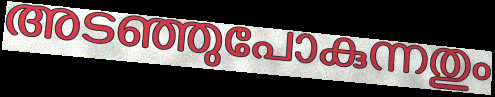
അടഞ്ഞുപോകുന്നതും